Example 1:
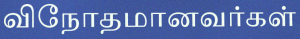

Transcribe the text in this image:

விநோதமானவர்கள்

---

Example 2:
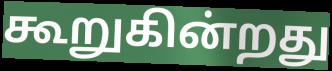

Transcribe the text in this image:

கூறுகின்றது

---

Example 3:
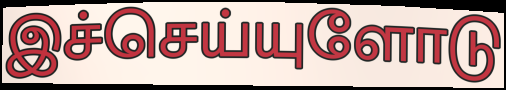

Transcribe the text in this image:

இச்செய்யுளோடு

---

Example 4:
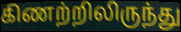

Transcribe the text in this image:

கிணற்றிலிருந்து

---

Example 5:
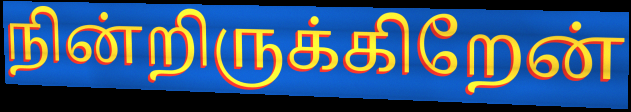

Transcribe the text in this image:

நின்றிருக்கிறேன்